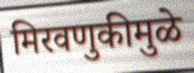
मिरवणुकीमुळे